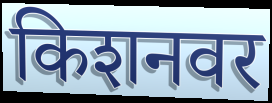
किशनवर